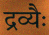
द्रव्यैः